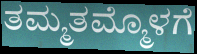
ತಮ್ಮತಮ್ಮೊಳಗೆ